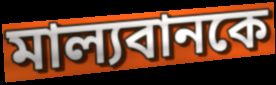
মাল্যবানকে